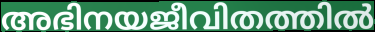
അഭിനയജീവിതത്തിൽ